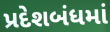
પ્રદેશબંધમાં